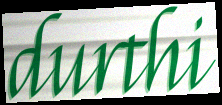
durthi